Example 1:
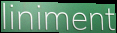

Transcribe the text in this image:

liniment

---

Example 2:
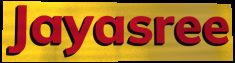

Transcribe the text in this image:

Jayasree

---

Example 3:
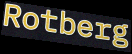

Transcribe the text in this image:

Rotberg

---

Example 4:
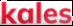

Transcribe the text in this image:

kales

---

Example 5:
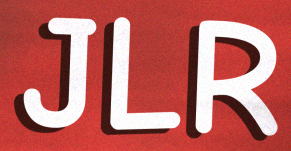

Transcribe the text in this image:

JLR